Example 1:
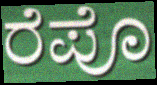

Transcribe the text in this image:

ರೆಪೊ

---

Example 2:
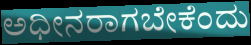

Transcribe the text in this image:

ಅಧೀನರಾಗಬೇಕೆಂದು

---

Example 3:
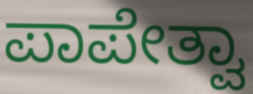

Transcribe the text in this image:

ಪಾಪೇತ್ವಾ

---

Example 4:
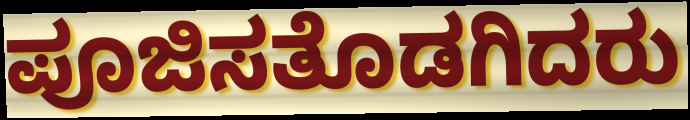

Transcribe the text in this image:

ಪೂಜಿಸತೊಡಗಿದರು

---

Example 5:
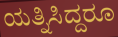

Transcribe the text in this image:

ಯತ್ನಿಸಿದ್ದರೂ